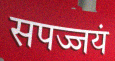
सपज्जयं